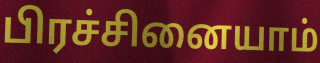
பிரச்சினையாம்